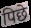
पिछे